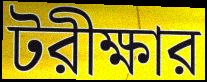
টরীক্ষার